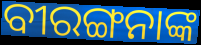
ବୀରଙ୍ଗନାଙ୍କ